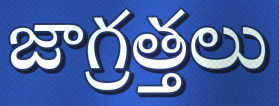
జాగ్రత్తలు